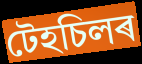
টেহচিলৰ